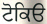
ਟੋਕਿੳ